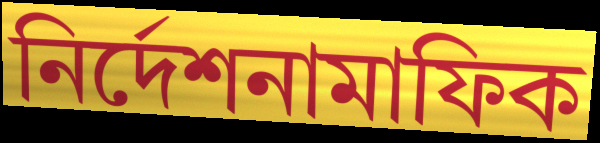
নির্দেশনামাফিক